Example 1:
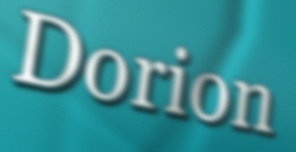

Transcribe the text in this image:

Dorion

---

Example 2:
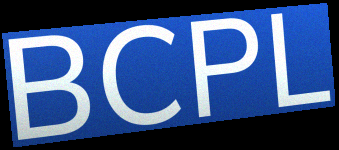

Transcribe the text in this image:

BCPL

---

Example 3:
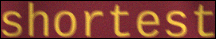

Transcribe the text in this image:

shortest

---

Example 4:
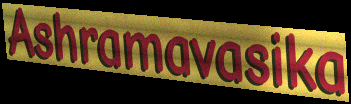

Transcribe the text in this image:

Ashramavasika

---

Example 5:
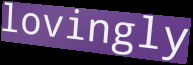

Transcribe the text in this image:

lovingly